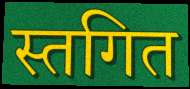
स्तगित